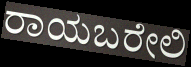
ರಾಯಬರೇಲಿ